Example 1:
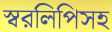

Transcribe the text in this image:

স্বরলিপিসহ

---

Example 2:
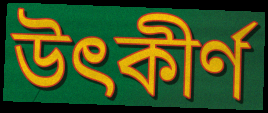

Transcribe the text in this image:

উৎকীর্ণ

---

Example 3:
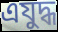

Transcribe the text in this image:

এযুদ্ধ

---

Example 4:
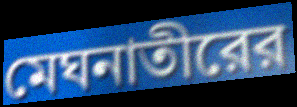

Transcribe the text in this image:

মেঘনাতীরের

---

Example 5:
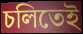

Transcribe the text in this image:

চলিতেই